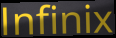
Infinix